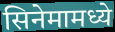
सिनेमामध्ये